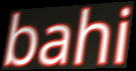
bahi